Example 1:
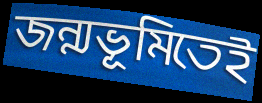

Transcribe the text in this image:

জন্মভূমিতেই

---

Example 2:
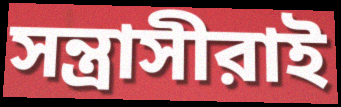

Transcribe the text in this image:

সন্ত্রাসীরাই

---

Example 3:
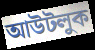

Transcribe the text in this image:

আউটলুক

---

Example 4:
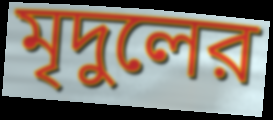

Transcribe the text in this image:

মৃদুলের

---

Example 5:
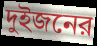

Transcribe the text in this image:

দুইজনের